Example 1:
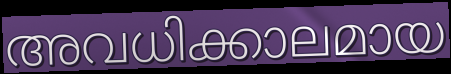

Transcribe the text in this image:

അവധിക്കാലമായ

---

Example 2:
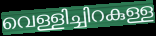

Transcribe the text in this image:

വെള്ളിച്ചിറകുള്ള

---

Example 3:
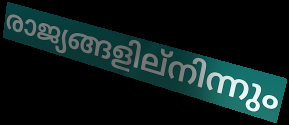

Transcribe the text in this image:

രാജ്യങ്ങളില്നിന്നും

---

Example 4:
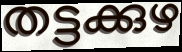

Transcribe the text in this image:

തട്ടക്കുഴ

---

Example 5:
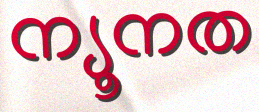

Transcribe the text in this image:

ന്യൂനത